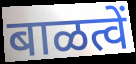
बाळत्वें